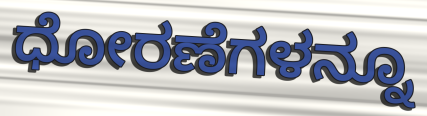
ಧೋರಣೆಗಳನ್ನೂ